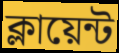
ক্লায়েন্ট